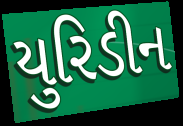
યુરિડીન